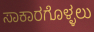
ಸಾಕಾರಗೊಳ್ಳಲು